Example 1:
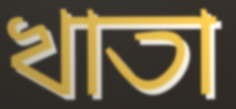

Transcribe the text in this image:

খাতা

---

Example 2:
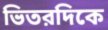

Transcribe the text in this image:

ভিতরদিকে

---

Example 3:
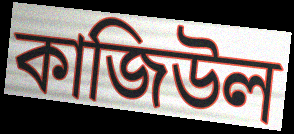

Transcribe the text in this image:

কাজিউল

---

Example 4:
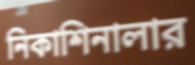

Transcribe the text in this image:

নিকাশিনালার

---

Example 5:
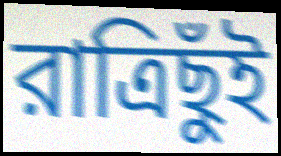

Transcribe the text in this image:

রাত্রিছুঁই